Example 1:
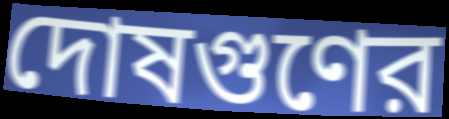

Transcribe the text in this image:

দোষগুণের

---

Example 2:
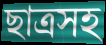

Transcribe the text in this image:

ছাত্রসহ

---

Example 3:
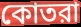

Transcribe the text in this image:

কোতরা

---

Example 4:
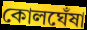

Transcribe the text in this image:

কোলঘেঁষা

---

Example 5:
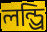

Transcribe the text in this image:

লন্ড্রি